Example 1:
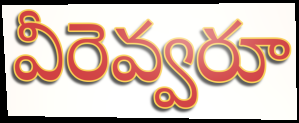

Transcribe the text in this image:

వీరెవ్వరూ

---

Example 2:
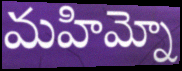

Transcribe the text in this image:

మహిమ్నో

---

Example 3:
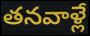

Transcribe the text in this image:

తనవాళ్లే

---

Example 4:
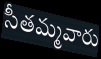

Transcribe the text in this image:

సీతమ్మవారు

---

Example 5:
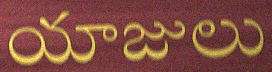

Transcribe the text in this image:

యాజులు